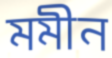
মমীন